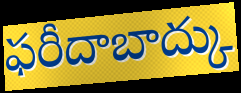
ఫరీదాబాద్కు